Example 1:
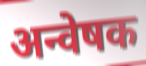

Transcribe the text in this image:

अन्वेषक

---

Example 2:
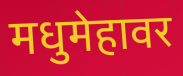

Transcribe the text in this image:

मधुमेहावर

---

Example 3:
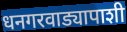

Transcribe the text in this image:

धनगरवाड्यापाशी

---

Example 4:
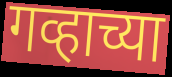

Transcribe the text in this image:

गव्हाच्या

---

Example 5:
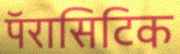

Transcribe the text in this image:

पॅरासिटिक